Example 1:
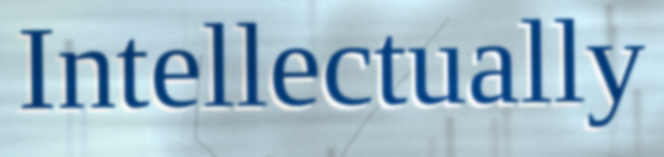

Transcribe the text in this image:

Intellectually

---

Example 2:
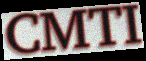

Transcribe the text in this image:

CMTI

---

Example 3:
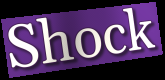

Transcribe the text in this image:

Shock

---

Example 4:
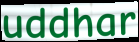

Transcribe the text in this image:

uddhar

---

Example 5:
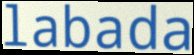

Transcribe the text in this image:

labada